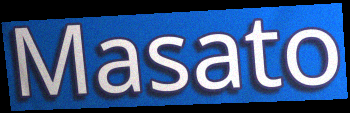
Masato